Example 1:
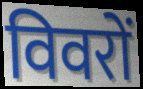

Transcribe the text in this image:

विवरों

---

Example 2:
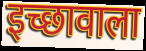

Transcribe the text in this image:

इच्छावाला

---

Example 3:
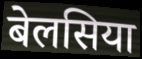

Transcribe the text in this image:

बेलसिया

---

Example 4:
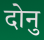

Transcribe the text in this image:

दोनु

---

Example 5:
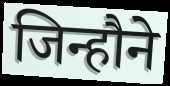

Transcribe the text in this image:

जिन्हौने